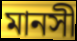
মানসী